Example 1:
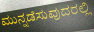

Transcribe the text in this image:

ಮುನ್ನಡೆಸುವುದರಲ್ಲಿ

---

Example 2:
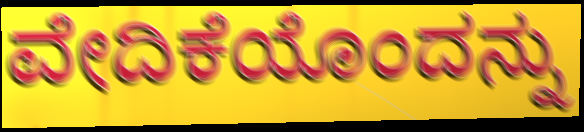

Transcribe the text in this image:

ವೇದಿಕೆಯೊಂದನ್ನು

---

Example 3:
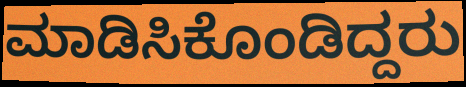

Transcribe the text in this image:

ಮಾಡಿಸಿಕೊಂಡಿದ್ದರು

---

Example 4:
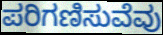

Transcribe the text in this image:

ಪರಿಗಣಿಸುವೆವು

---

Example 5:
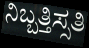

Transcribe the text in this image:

ನಿಬ್ಬತ್ತಿಸ್ಸತಿ